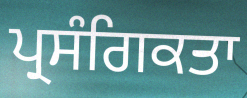
ਪ੍ਰਸੰਗਿਕਤਾ